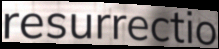
resurrectio